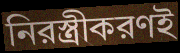
নিরস্ত্রীকরণই